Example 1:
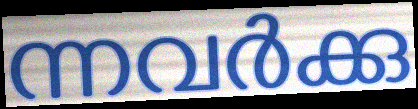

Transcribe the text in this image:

ന്നവർക്കു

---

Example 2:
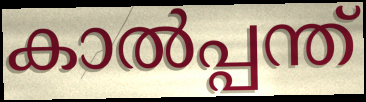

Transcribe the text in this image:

കാൽപ്പന്ത്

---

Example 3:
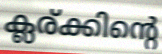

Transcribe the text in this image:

ക്ലര്ക്കിന്റെ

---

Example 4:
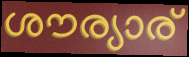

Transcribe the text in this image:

ശൗര്യാര്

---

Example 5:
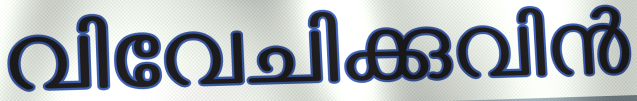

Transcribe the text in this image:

വിവേചിക്കുവിൻ